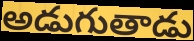
అడుగుతాడు